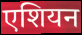
एशियन